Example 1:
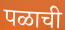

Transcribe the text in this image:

पळाची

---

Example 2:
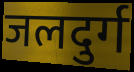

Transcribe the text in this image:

जलदुर्ग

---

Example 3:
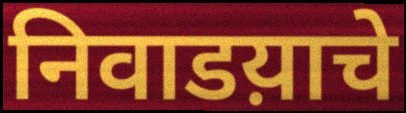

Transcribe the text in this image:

निवाडय़ाचे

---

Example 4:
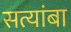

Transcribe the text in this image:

सत्यांबा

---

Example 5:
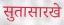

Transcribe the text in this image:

सुतासारखे